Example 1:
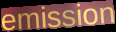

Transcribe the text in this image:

emission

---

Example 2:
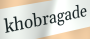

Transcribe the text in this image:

khobragade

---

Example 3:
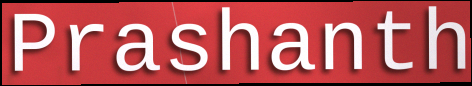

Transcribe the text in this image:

Prashanth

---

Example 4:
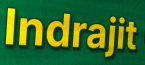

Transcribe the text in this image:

Indrajit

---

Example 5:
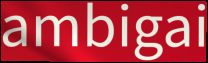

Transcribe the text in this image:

ambigai